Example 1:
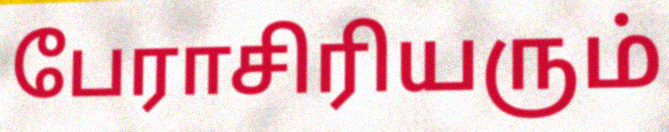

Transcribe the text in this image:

பேராசிரியரும்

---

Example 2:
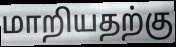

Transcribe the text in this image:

மாறியதற்கு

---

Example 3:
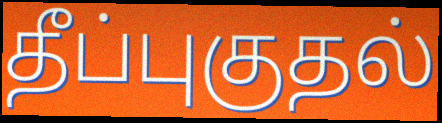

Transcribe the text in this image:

தீப்புகுதல்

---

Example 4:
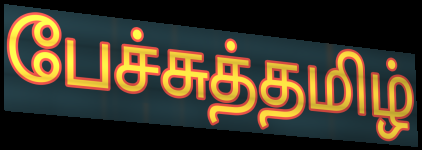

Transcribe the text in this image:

பேச்சுத்தமிழ்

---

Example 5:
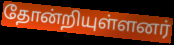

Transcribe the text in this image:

தோன்றியுள்ளனர்